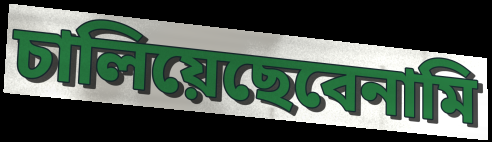
চালিয়েছেবেনামি